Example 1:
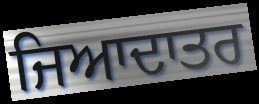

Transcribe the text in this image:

ਜਿਆਦਾਤਰ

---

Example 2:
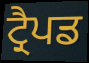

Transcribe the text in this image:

ਟ੍ਰੈਪਡ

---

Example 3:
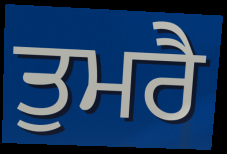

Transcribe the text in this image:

ਤੁਮਰੈ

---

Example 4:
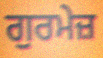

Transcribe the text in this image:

ਗੁਰਮੇਜ਼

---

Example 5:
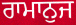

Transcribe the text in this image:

ਰਾਮਾਨੁਜ